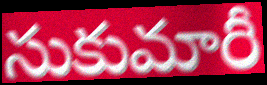
సుకుమారీ